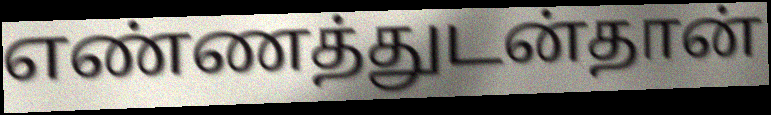
எண்ணத்துடன்தான்